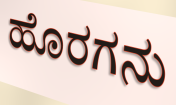
ಹೊರಗನು